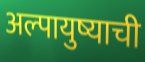
अल्पायुष्याची